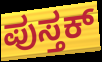
ಪುಸ್ತಕ್